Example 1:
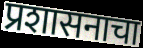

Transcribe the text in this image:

प्रशासनाचा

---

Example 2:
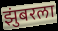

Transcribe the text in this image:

झुंबरला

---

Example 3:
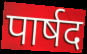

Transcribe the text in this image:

पार्षद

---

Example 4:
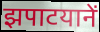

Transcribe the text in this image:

झपाटयानें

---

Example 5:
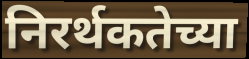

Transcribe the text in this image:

निरर्थकतेच्या